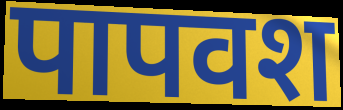
पापवश